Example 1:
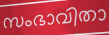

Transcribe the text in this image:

സംഭാവിതാ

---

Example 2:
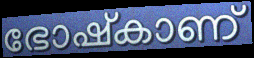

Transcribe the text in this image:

ഭോഷ്കാണ്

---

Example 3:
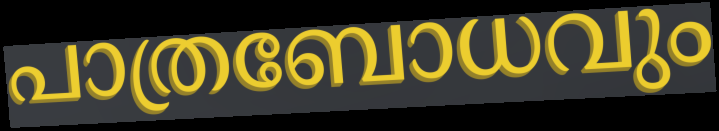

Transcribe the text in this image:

പാത്രബോധവും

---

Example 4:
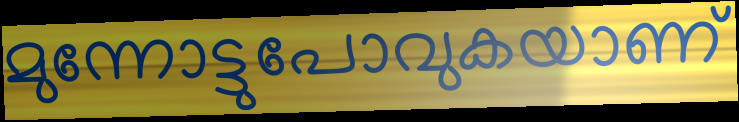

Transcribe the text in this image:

മുന്നോട്ടുപോവുകയാണ്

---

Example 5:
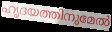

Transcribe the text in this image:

ഹൃദയത്തിനുമേൽ